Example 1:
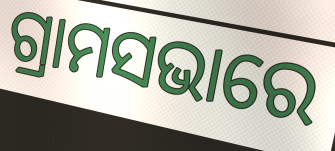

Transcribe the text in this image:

ଗ୍ରାମସଭାରେ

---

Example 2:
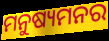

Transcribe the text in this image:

ମନୁଷ୍ୟମନର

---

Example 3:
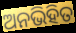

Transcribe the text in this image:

ଅନଭିହିତ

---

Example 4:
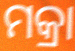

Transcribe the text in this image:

ମକ୍ରା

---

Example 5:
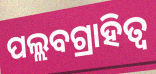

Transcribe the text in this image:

ପଲ୍ଲବଗ୍ରାହିତ୍ୱ